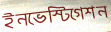
ইনভেস্টিগেশন